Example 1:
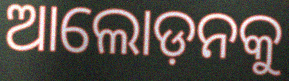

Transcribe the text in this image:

ଆଲୋଡ଼ନକୁ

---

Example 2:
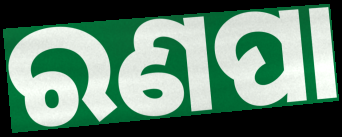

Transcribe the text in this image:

ରଣପା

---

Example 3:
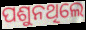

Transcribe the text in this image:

ପଶୁନଥିଲେ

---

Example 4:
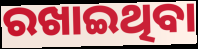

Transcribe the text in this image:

ରଖାଇଥିବା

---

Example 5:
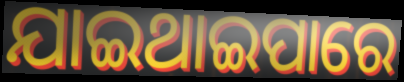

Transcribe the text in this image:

ଯାଇଥାଇପାରେ